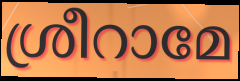
ശ്രീറാമേ